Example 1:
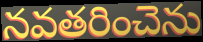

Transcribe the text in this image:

నవతరించెను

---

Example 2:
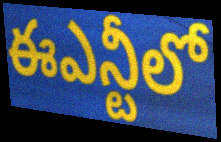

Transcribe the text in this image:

ఈఎన్టీలో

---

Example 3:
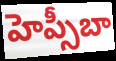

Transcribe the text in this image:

హెప్సీబా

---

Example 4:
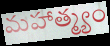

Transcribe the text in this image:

మహాత్మ్యం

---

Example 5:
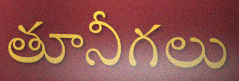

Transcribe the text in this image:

తూనీగలు